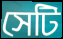
সেটি